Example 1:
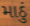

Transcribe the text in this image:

માઠું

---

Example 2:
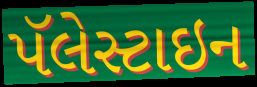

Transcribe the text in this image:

પૅલેસ્ટાઇન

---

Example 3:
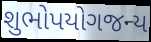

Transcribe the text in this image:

શુભોપયોગજન્ય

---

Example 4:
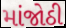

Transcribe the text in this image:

માંજોઠી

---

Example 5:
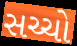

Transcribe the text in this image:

સચ્ચો